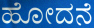
ಹೋದನೆ